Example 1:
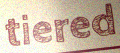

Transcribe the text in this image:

tiered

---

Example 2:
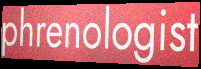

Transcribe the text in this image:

phrenologist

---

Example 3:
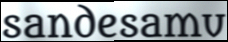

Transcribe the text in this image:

sandesamu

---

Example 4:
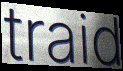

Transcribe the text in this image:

traid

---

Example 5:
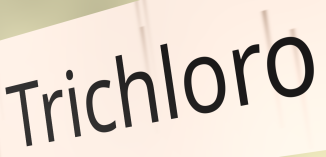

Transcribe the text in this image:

Trichloro